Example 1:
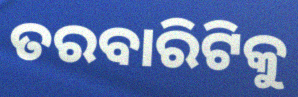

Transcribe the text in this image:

ତରବାରିଟିକୁ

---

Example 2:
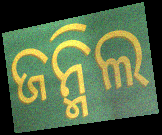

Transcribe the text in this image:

ଜନ୍ମିଲ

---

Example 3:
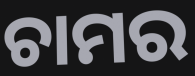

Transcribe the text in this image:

ଚାମର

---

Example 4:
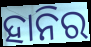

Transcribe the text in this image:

ହାନିର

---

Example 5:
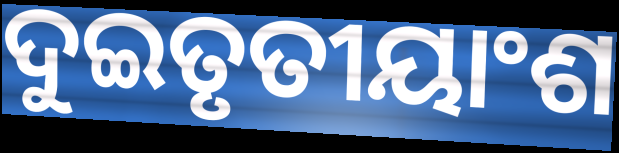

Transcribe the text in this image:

ଦୁଇତୃତୀୟାଂଶ